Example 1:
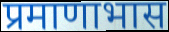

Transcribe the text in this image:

प्रमाणाभास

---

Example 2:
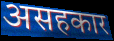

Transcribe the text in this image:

असहकार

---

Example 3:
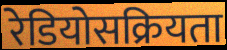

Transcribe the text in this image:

रेडियोसक्रियता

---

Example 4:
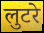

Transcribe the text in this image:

लुटरे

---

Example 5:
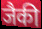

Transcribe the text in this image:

जैकी